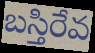
బస్తిరేవ